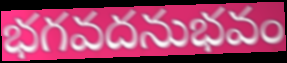
భగవదనుభవం